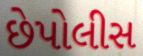
છેપોલીસ